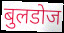
बुलडोज